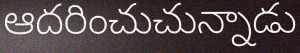
ఆదరించుచున్నాడు